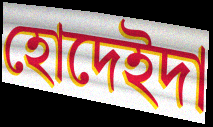
হোদেইদা